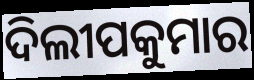
ଦିଲୀପକୁମାର